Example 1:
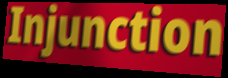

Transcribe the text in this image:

Injunction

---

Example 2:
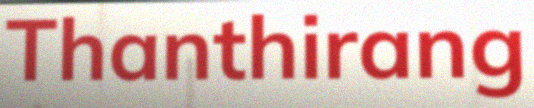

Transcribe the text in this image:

Thanthirang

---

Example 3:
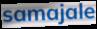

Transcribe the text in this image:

samajale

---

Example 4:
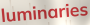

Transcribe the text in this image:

luminaries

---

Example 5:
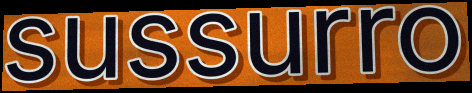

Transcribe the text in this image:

sussurro